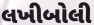
લખીબોલી